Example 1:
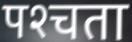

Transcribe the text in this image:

पश्चता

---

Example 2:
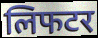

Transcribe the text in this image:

लिफटर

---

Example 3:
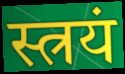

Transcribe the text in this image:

स्त्रयं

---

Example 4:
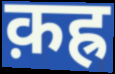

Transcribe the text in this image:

क़ह्र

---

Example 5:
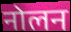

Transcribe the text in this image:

नोलन